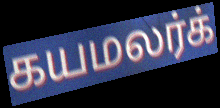
கயமலர்க்